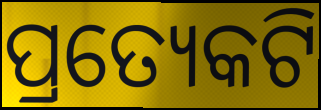
ପ୍ରତ୍ୟେକଟି